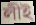
লীই